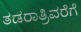
ತಡರಾತ್ರಿವರೆಗೆ